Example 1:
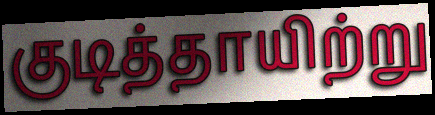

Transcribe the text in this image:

குடித்தாயிற்று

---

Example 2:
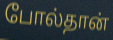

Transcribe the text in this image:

போல்தான்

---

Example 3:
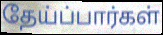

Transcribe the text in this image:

தேய்ப்பார்கள்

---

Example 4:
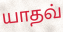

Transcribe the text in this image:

யாதவ்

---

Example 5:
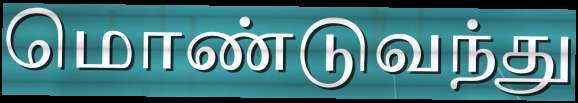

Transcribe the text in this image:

மொண்டுவந்து